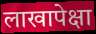
लाखापेक्षा